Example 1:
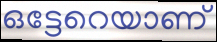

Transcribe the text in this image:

ഒട്ടേറെയാണ്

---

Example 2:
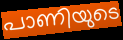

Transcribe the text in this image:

പാണിയുടെ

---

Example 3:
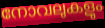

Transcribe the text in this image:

നോവലുകളും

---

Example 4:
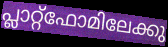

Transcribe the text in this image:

പ്ലാറ്റ്ഫോമിലേക്കു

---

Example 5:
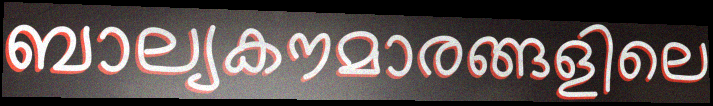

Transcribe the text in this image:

ബാല്യകൗമാരങ്ങളിലെ